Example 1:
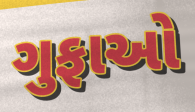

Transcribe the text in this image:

ગુફાઓ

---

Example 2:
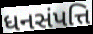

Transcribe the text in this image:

ધનસંપત્તિ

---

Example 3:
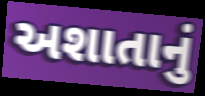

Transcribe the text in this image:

અશાતાનું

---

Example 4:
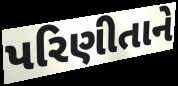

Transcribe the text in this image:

પરિણીતાને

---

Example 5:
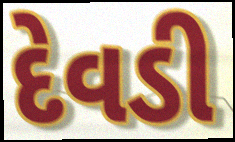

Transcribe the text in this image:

દેવડી